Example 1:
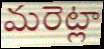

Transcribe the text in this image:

మరెట్లా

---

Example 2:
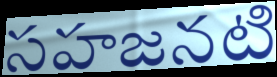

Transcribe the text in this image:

సహజనటి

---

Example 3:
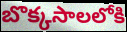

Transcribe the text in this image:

బొక్కసాలలోకి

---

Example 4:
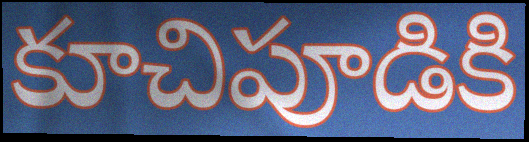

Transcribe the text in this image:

కూచిపూడికి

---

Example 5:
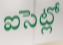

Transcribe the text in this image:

ఐసెట్లో